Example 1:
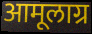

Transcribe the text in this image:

आमूलाग्र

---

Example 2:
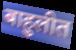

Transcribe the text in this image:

बाहुलीत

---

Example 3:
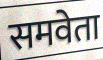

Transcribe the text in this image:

समवेता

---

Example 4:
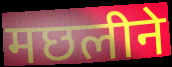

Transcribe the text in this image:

मछलीने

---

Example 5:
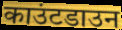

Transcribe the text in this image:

काउंटडाउन